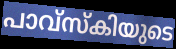
പാവ്സ്കിയുടെ